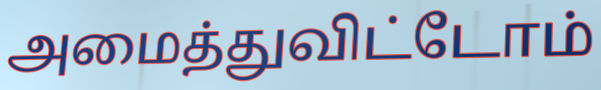
அமைத்துவிட்டோம்